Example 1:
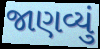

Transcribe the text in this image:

જાણવ્યું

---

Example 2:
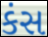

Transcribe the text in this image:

કંસ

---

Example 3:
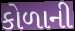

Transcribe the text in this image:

કોળાની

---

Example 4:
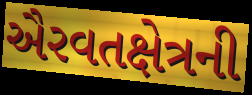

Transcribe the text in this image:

ઐરવતક્ષેત્રની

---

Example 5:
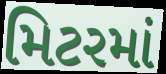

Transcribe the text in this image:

મિટરમાં